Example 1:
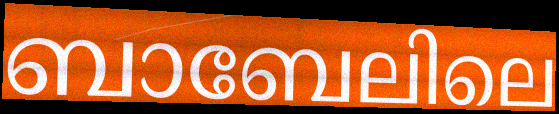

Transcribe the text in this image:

ബാബേലിലെ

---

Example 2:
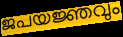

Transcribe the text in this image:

ജപയജ്ഞവും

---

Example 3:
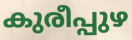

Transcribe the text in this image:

കുരീപ്പുഴ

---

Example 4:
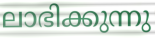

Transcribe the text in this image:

ലാഭിക്കുന്നു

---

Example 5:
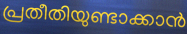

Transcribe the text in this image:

പ്രതീതിയുണ്ടാക്കാൻ